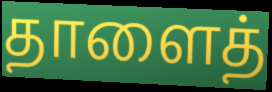
தாளைத்